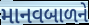
માનવબાળને